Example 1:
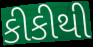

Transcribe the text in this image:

કીકીથી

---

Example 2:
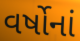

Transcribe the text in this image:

વર્ષોનાં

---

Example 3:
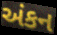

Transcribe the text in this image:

અંકન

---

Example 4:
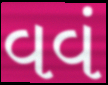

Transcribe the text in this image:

વવં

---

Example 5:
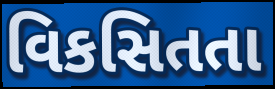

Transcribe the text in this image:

વિકસિતતા